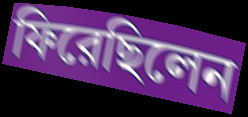
ফিরেছিলেন